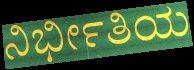
ನಿರ್ಭೀತಿಯ